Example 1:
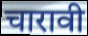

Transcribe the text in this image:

चारावी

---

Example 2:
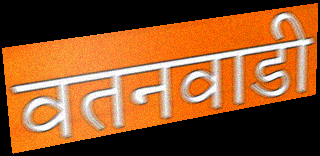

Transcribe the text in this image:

वतनवाडी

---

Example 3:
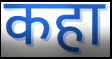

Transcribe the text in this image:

कहा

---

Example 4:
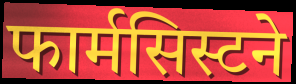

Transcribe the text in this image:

फार्मसिस्टने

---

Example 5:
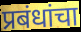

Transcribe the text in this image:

प्रबंधांचा